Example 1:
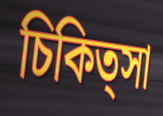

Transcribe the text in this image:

চিকিত্সা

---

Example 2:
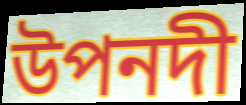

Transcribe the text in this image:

উপনদী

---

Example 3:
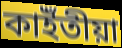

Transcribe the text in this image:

কাইঁতীয়া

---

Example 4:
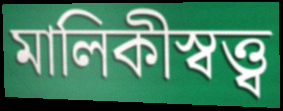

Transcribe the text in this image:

মালিকীস্বত্ত্ব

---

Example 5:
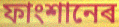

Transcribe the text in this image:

ফাংশানেৰ